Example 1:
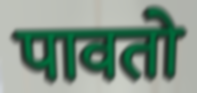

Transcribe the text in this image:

पावतो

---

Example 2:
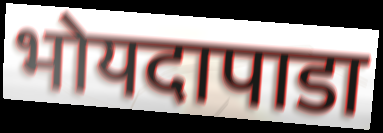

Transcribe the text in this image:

भोयदापाडा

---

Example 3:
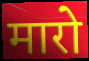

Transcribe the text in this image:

मारो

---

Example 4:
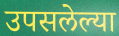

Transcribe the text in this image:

उपसलेल्या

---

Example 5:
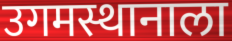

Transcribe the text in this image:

उगमस्थानाला